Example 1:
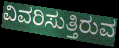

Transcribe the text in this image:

ವಿವರಿಸುತ್ತಿರುವ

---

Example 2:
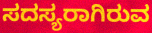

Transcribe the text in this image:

ಸದಸ್ಯರಾಗಿರುವ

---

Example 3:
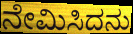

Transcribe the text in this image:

ನೇಮಿಸಿದನು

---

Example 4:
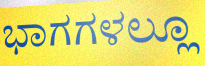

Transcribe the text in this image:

ಭಾಗಗಳಲ್ಲೂ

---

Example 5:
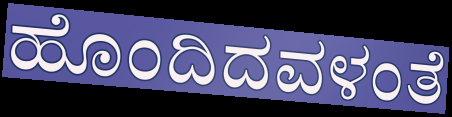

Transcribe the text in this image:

ಹೊಂದಿದವಳಂತೆ